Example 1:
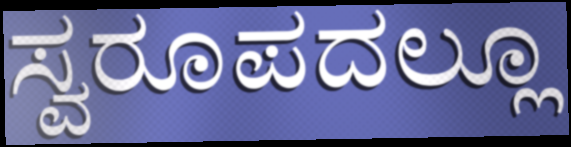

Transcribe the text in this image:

ಸ್ವರೂಪದಲ್ಲೂ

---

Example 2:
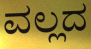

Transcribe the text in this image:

ವಲ್ಲದ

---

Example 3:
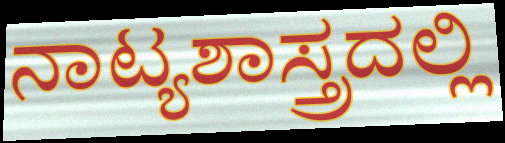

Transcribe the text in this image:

ನಾಟ್ಯಶಾಸ್ತ್ರದಲ್ಲಿ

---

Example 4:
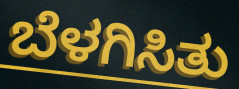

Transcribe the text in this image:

ಬೆಳಗಿಸಿತು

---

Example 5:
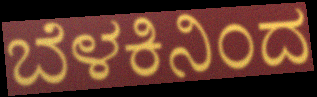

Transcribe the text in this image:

ಬೆಳಕಿನಿಂದ